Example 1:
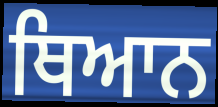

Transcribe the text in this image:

ਥਿਆਨ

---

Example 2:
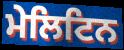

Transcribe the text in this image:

ਮੇਲਿਟਿਨ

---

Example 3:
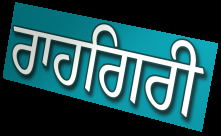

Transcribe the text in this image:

ਰਾਹਗਿਰੀ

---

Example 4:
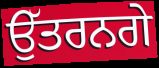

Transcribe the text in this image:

ਉੱਤਰਨਗੇ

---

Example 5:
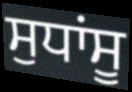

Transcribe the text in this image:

ਸੁਧਾਂਸੂ